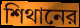
শিথানের